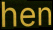
hen